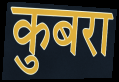
कुबरा